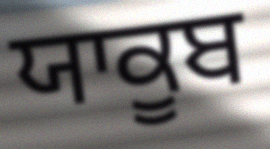
ਯਾਕੂਬ